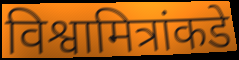
विश्वामित्रांकडे